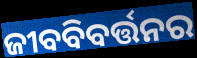
ଜୀବବିବର୍ତ୍ତନର